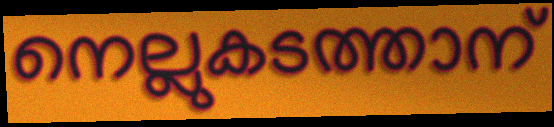
നെല്ലുകടത്താന്